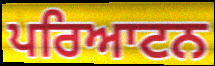
ਪਰਿਆਟਨ